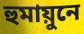
হুমায়ুনে